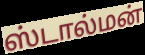
ஸ்டால்மன்